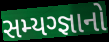
સમ્યગ્જ્ઞાનો